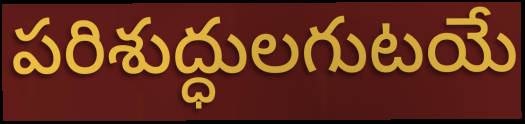
పరిశుద్ధులగుటయే